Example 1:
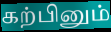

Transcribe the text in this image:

கற்பினும்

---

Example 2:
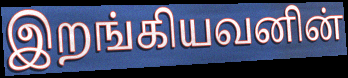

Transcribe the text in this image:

இறங்கியவனின்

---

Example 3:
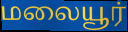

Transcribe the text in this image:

மலையூர்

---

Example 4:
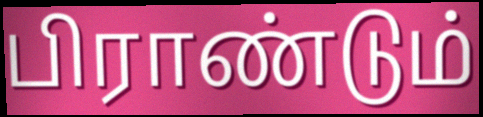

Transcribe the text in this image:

பிராண்டும்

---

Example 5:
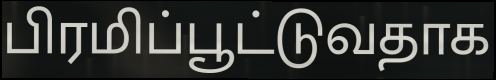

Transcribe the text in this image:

பிரமிப்பூட்டுவதாக